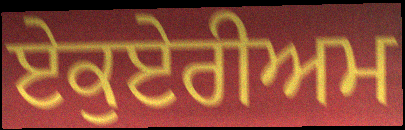
ਏਕੁਏਰੀਅਮ